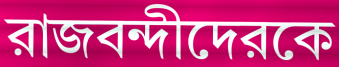
রাজবন্দীদেরকে